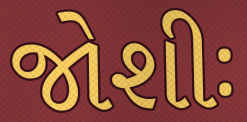
જોશીઃ